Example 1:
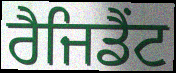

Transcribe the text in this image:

ਰੈਜਿਡੈਂਟ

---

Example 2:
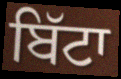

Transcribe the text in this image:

ਬਿੱਟਾ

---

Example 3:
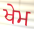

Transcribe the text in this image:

ਖੇਮ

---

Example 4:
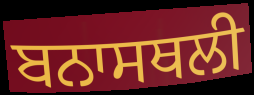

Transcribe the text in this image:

ਬਨਾਸਥਲੀ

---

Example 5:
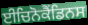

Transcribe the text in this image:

ਈਚਿਨੋਕੈਂਡਿਨਸ